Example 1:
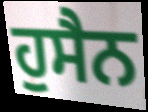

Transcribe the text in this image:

ਹੁਸੈਨ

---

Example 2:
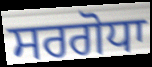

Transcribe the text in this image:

ਸਰਗੋਧਾ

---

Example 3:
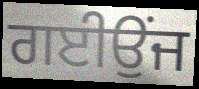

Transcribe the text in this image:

ਗਈਉਂਜ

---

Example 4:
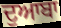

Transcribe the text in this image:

ਦੁਆਬਾ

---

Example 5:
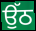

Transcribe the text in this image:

ਉੱਠ